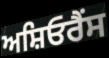
ਅਸ਼ਿਓਰੈਂਸ